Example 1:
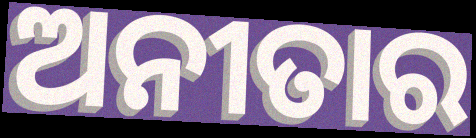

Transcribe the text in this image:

ଅନୀତାର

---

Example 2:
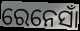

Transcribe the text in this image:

ରେନେସାଁ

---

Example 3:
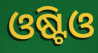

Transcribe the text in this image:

ଓଷ୍ଟିଓ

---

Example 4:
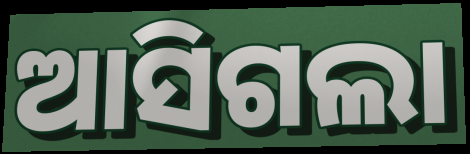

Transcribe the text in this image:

ଆସିଗଲା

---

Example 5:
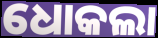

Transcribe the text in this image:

ଧୋକଲା